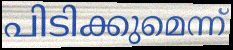
പിടിക്കുമെന്ന്